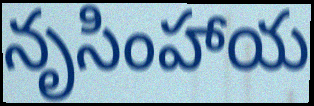
నృసింహాయ